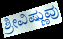
ಶ್ರೀವಿಷ್ಣುವು